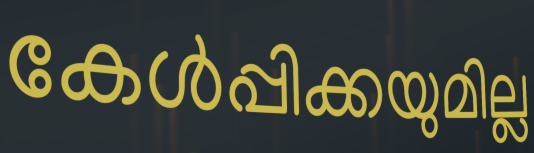
കേൾപ്പിക്കയുമില്ല